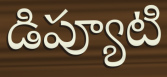
డిప్యూటి